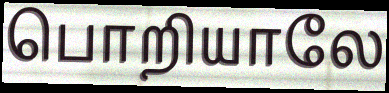
பொறியாலே